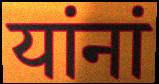
यांनां